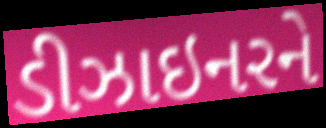
ડીઝાઇનરને